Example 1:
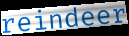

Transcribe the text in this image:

reindeer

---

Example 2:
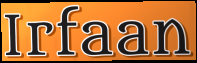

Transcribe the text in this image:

Irfaan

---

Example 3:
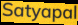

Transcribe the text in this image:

Satyapal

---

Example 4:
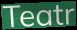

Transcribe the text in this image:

Teatr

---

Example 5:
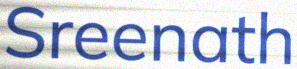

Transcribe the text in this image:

Sreenath